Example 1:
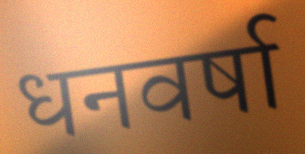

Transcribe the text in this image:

धनवर्षा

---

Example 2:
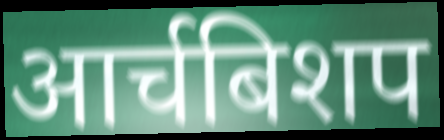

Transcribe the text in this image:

आर्चबिशप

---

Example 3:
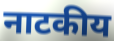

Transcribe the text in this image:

नाटकीय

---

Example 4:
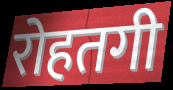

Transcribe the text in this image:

रोहतगी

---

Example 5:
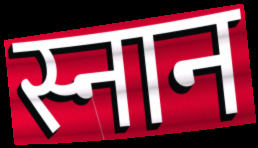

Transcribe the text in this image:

स्नान